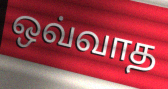
ஒவ்வாத